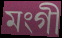
মংগী